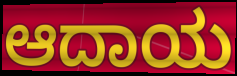
ಆದಾಯ